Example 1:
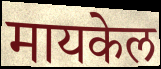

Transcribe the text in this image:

मायकेल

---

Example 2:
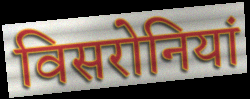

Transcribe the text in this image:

विसरोनियां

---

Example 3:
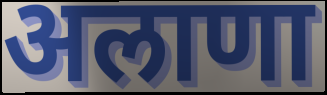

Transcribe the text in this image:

अलाणा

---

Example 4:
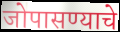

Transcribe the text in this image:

जोपासण्याचे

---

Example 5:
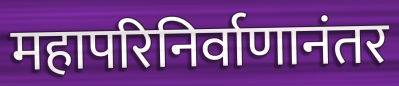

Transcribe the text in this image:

महापरिनिर्वाणानंतर